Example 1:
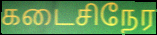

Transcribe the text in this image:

கடைசிநேர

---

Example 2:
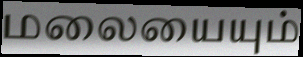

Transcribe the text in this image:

மலையையும்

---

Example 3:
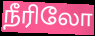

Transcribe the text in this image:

நீரிலோ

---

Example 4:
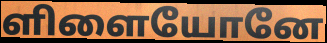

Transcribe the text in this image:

ளிளையோனே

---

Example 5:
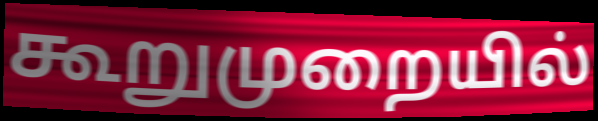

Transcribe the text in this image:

கூறுமுறையில்